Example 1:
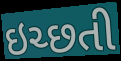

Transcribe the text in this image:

ઇચ્છતી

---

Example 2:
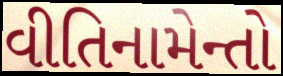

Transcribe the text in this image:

વીતિનામેન્તો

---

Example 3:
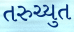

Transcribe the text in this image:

તરુચ્યુત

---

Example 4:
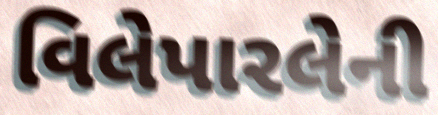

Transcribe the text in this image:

વિલેપારલેની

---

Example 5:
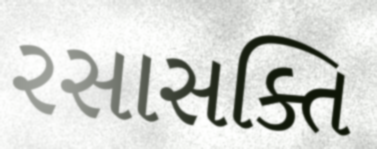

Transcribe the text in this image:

રસાસક્તિ